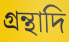
গ্রন্থাদি